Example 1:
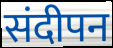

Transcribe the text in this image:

संदीपन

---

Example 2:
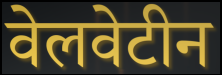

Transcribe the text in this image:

वेलवेटीन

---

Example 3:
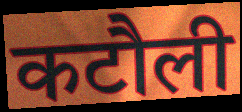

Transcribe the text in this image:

कटौली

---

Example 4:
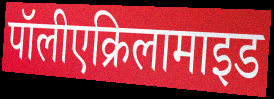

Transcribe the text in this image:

पॉलीएक्रिलामाइड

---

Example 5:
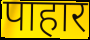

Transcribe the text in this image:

पाहार